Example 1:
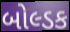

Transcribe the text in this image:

બોલ્ડક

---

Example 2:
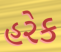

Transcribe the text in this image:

હરેક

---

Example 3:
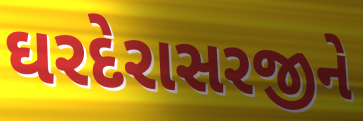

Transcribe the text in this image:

ઘરદેરાસરજીને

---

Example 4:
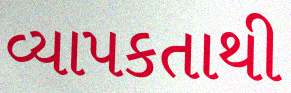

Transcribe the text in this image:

વ્યાપકતાથી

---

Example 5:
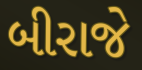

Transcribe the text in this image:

બીરાજે